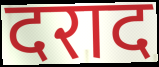
दराद